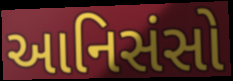
આનિસંસો